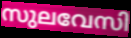
സുലവേസി